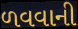
ળવવાની